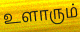
உளாரும்